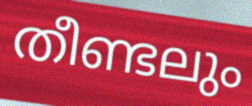
തീണ്ടലും